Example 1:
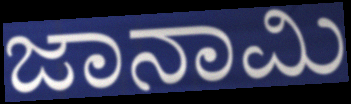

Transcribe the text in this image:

ಜಾನಾಮಿ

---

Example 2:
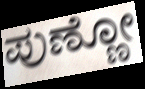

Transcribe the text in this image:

ಪುಣ್ಣೋ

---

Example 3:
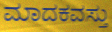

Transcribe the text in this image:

ಮಾದಕವಸ್ತು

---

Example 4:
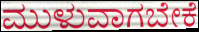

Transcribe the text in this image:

ಮುಳುವಾಗಬೇಕೆ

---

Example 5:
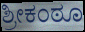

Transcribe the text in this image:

ಶ್ರೀಕಂಠೂ